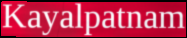
Kayalpatnam